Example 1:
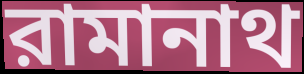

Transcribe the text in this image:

রামানাথ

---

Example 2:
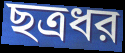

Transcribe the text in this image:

ছত্রধর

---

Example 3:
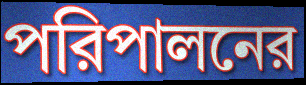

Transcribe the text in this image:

পরিপালনের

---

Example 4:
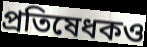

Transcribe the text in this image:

প্রতিষেধকও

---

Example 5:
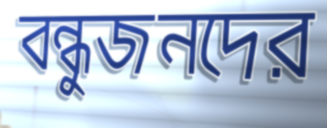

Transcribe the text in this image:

বন্ধুজনদের